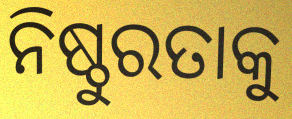
ନିଷ୍ଠୁରତାକୁ